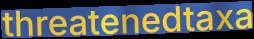
threatenedtaxa